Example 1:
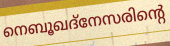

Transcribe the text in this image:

നെബൂഖദ്നേസരിന്റെ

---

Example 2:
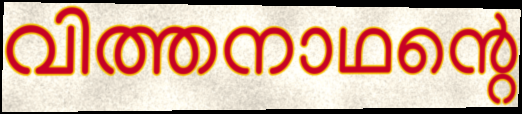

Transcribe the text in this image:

വിത്തനാഥന്റെ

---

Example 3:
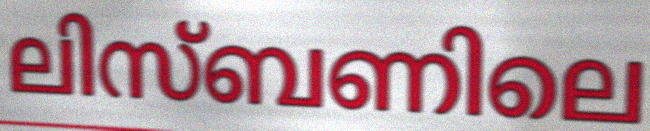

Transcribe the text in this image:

ലിസ്ബണിലെ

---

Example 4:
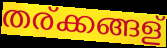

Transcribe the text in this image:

തര്ക്കങ്ങള്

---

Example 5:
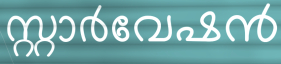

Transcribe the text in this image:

സ്റ്റാർവേഷൻ